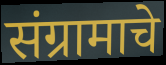
संग्रामाचे